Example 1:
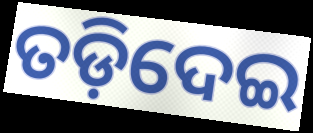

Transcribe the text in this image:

ତଡ଼ିଦେଇ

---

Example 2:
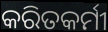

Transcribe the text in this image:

କରିତକର୍ମୀ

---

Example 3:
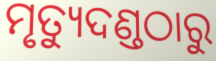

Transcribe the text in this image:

ମୃତ୍ୟୁଦଣ୍ଡଠାରୁ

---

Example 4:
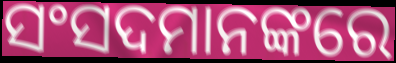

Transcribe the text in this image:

ସଂସଦମାନଙ୍କରେ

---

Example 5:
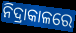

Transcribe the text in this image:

ନିଦ୍ରାକାଳରେ